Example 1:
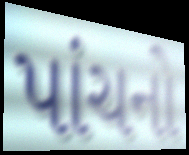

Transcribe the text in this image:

પાંચનો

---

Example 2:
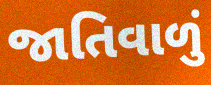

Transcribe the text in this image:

જાતિવાળું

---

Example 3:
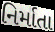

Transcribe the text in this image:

નિર્માતા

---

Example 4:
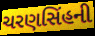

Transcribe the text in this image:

ચરણસિંહની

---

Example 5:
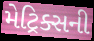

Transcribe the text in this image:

મેટ્રિક્સની